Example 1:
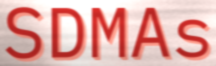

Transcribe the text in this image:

SDMAs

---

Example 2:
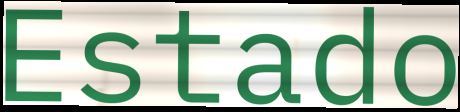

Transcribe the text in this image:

Estado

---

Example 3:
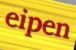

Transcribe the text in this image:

eipen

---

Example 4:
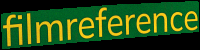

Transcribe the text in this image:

filmreference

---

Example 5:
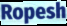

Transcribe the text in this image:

Ropesh